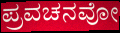
ಪ್ರವಚನವೋ